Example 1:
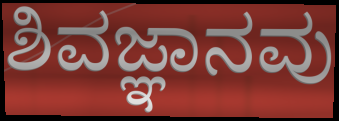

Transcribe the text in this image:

ಶಿವಜ್ಞಾನವು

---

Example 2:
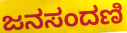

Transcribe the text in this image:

ಜನಸಂದಣಿ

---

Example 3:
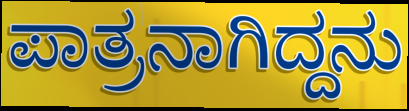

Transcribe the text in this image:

ಪಾತ್ರನಾಗಿದ್ದನು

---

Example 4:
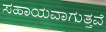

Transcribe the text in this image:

ಸಹಾಯವಾಗುತ್ತವೆ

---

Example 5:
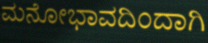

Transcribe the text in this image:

ಮನೋಭಾವದಿಂದಾಗಿ